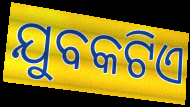
ଯୁବକଟିଏ